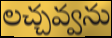
లచ్చవ్వను